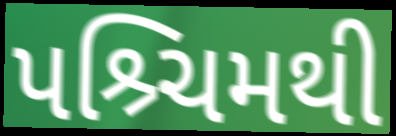
પશ્ર્ચિમથી